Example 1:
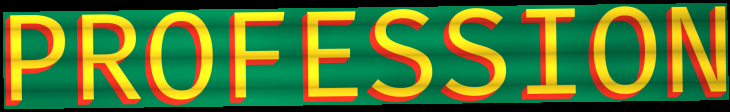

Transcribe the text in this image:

PROFESSION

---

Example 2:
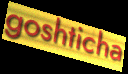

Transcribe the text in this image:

goshticha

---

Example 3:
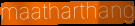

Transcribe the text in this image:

maatharthang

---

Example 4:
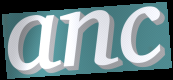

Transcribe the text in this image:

anc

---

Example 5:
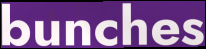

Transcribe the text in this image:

bunches